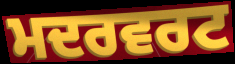
ਮਦਰਵਰਟ